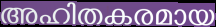
അഹിതകരമായ